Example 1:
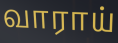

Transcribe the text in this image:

வாராய்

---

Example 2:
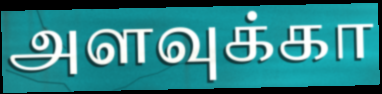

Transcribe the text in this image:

அளவுக்கா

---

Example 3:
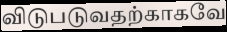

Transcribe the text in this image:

விடுபடுவதற்காகவே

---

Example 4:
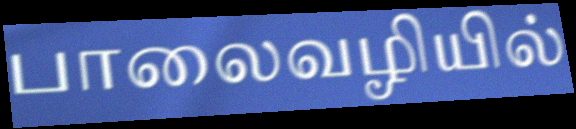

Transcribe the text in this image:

பாலைவழியில்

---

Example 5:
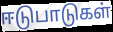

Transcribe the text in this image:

ஈடுபாடுகள்